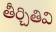
తీర్చితివి